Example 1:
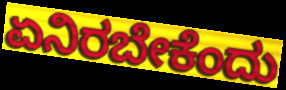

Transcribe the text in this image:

ಏನಿರಬೇಕೆಂದು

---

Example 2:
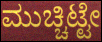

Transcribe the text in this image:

ಮುಚ್ಚಿಟ್ಟೇ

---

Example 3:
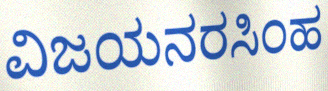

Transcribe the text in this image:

ವಿಜಯನರಸಿಂಹ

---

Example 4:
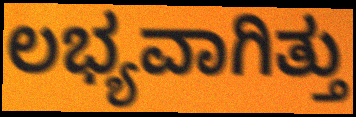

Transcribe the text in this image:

ಲಭ್ಯವಾಗಿತ್ತು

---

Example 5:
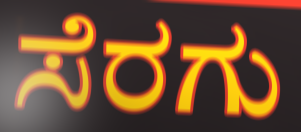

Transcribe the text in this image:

ಸೆರಗು